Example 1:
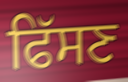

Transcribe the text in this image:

ਫਿੱਸਣ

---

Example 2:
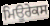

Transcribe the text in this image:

ਮਿਊਰੇਕਸ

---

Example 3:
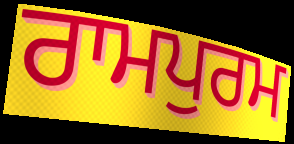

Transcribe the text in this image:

ਰਾਮਪੁਰਮ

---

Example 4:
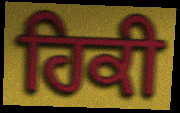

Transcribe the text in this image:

ਹਿਕੀ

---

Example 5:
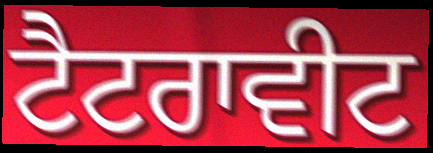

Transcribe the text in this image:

ਟੈਟਰਾਵੀਟ